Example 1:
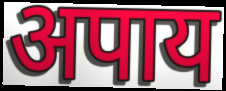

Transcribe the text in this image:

अपाय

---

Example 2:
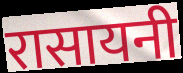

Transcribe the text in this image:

रासायनी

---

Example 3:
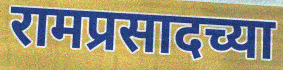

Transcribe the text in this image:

रामप्रसादच्या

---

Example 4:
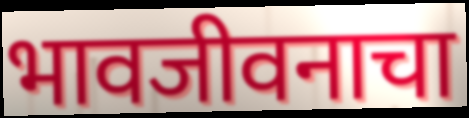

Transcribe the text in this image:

भावजीवनाचा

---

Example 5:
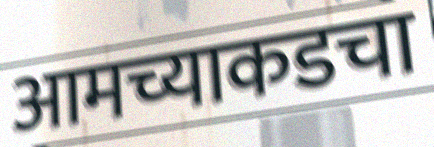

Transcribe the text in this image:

आमच्याकडचा